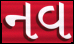
નવ